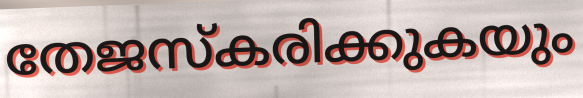
തേജസ്കരിക്കുകയും